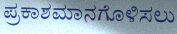
ಪ್ರಕಾಶಮಾನಗೊಳಿಸಲು